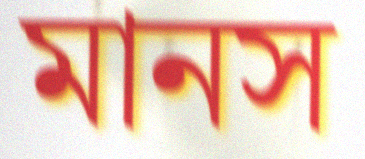
মানস